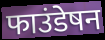
फाउंडेषन